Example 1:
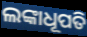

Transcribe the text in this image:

ଲଙ୍କାଧୂପତି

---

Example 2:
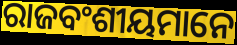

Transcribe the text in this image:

ରାଜବଂଶୀୟମାନେ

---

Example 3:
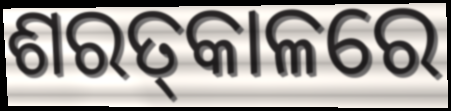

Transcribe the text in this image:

ଶରତ୍‌କାଳରେ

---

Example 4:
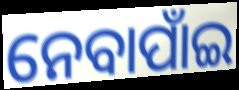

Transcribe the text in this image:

ନେବାପାଁଇ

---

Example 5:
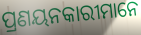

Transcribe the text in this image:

ପ୍ରଣୟନକାରୀମାନେ